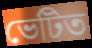
ভেটিত